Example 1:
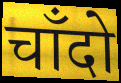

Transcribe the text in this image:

चाँदो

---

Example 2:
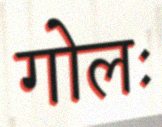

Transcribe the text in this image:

गोलः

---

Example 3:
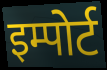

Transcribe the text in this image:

इम्पोर्ट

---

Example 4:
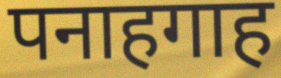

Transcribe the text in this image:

पनाहगाह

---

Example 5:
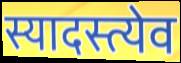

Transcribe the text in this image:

स्यादस्त्येव